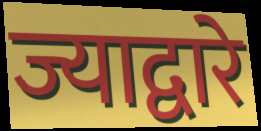
ज्याद्वारे